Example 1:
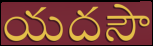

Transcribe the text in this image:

యదసౌ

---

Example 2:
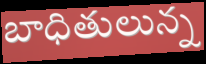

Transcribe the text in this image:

బాధితులున్న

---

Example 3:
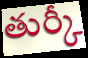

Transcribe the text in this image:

తుర్కీ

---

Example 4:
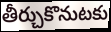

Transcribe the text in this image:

తీర్చుకొనుటకు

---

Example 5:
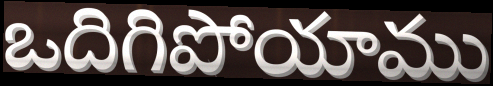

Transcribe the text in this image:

ఒదిగిపోయాము